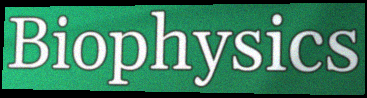
Biophysics